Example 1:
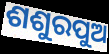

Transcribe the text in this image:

ଶଶୁରପୁଅ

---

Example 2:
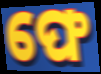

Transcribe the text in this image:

ଫେ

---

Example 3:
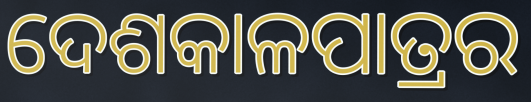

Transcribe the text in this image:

ଦେଶକାଳପାତ୍ରର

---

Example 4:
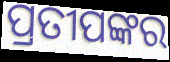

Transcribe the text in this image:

ପ୍ରତୀପଙ୍କର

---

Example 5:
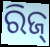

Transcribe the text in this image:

ରିଜ୍